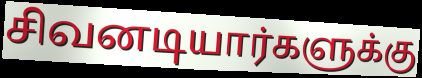
சிவனடியார்களுக்கு